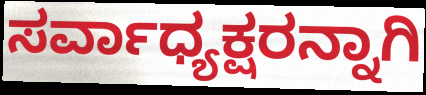
ಸರ್ವಾಧ್ಯಕ್ಷರನ್ನಾಗಿ